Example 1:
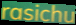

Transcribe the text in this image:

rasichu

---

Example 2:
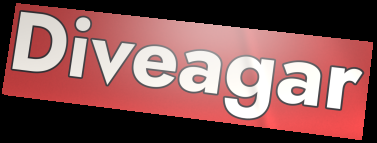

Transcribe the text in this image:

Diveagar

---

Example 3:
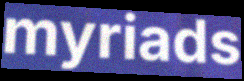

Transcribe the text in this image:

myriads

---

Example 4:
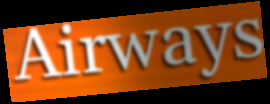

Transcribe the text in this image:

Airways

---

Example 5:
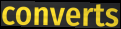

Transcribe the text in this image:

converts